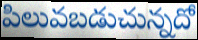
పిలువబడుచున్నదో